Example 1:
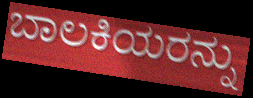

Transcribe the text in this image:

ಬಾಲಕಿಯರನ್ನು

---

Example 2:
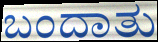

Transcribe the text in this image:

ಬಂದಾತು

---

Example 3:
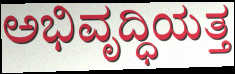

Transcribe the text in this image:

ಅಭಿವೃದ್ಧಿಯತ್ತ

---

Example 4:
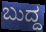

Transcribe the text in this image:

ಬುದ್ದ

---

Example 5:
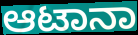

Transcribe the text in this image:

ಆಟಾನಾ